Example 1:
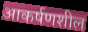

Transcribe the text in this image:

आकर्षणशील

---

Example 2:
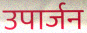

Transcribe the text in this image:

उपार्जन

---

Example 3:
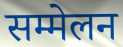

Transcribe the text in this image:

सम्मेलन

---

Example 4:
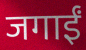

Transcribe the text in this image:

जगाईं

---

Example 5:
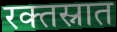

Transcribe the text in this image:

रक्तस्नात